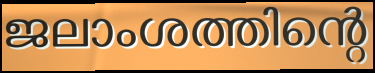
ജലാംശത്തിന്റെ